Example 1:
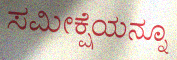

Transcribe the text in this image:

ಸಮೀಕ್ಷೆಯನ್ನೂ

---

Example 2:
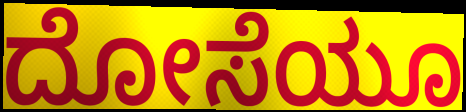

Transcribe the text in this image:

ದೋಸೆಯೂ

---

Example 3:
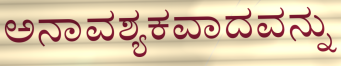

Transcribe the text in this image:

ಅನಾವಶ್ಯಕವಾದವನ್ನು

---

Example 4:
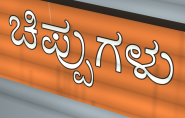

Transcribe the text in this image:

ಚಿಪ್ಪುಗಳು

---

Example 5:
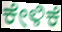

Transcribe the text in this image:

ಕೇಳಿಕೆ